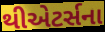
થીએટર્સના